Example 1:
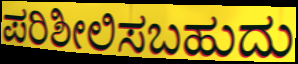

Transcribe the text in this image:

ಪರಿಶೀಲಿಸಬಹುದು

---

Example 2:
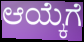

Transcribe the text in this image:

ಆಯ್ಕೆಗೆ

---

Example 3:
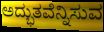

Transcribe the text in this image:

ಅದ್ಭುತವೆನ್ನಿಸುವ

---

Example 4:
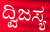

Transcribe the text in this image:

ದ್ವಿಜಸ್ಯ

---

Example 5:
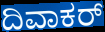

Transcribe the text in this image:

ದಿವಾಕರ್